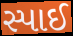
સ્પાઈ